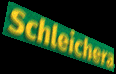
Schleichera